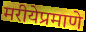
मरीयेप्रमाणे